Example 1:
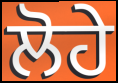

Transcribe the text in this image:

ਲੋਹੇ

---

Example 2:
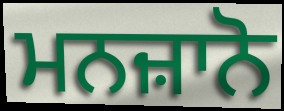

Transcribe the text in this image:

ਮਨਜ਼ਾਨੋ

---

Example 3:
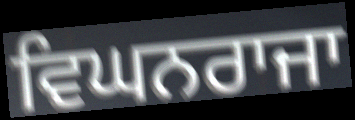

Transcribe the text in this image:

ਵਿਘਨਰਾਜਾ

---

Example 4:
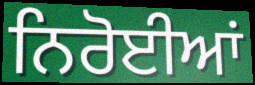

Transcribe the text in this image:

ਨਿਰੋਈਆਂ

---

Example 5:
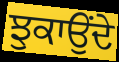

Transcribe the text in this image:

ਝੁਕਾਉੰਦੇ